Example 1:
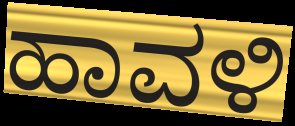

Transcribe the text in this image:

ಹಾವಳಿ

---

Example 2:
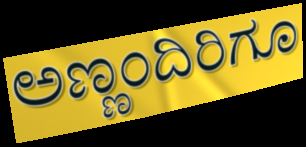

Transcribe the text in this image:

ಅಣ್ಣಂದಿರಿಗೂ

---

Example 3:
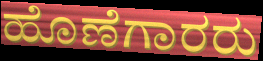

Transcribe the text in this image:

ಹೊಣೆಗಾರರು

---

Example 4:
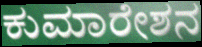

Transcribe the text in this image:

ಕುಮಾರೇಶನ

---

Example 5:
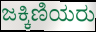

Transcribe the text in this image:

ಜಕ್ಕಿಣಿಯರು